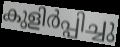
കുളിർപ്പിച്ചു